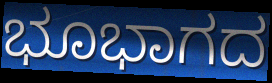
ಭೂಭಾಗದ